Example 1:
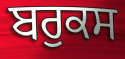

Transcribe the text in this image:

ਬਰੁਕਸ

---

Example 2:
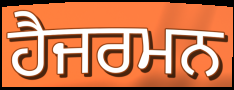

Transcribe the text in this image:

ਹੈਜਰਮਨ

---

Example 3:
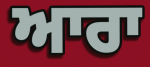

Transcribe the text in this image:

ਆਰਾ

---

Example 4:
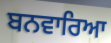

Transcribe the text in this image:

ਬਨਵਾਰਿਆ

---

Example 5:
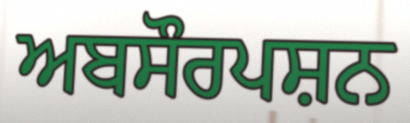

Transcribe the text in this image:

ਅਬਸੌਰਪਸ਼ਨ